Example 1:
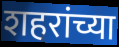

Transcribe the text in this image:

शहरांच्या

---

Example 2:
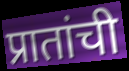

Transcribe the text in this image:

प्रातांची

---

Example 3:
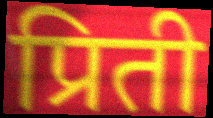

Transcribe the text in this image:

प्रिती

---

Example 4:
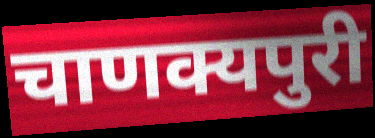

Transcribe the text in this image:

चाणक्यपुरी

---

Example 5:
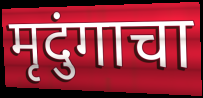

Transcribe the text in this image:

मृदुंगाचा